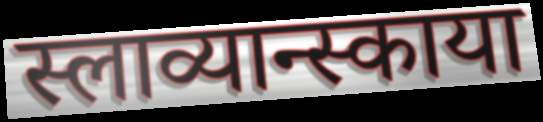
स्लाव्यान्स्काया